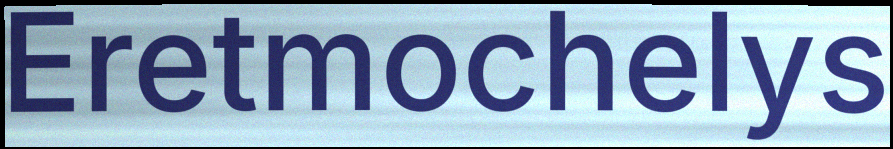
Eretmochelys